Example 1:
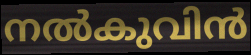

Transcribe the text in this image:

നൽകുവിൻ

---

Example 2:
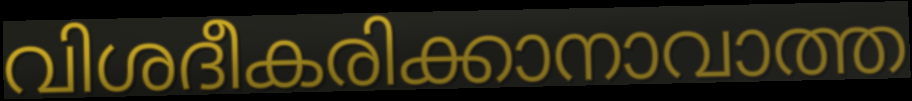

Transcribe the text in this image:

വിശദീകരിക്കാനാവാത്ത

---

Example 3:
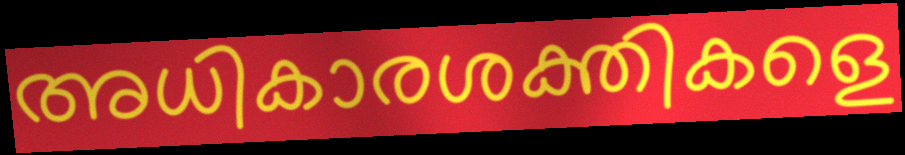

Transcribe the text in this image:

അധികാരശക്തികളെ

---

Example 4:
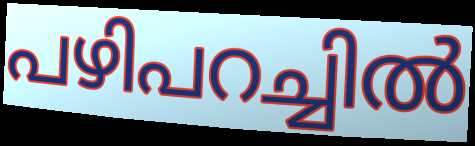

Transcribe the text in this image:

പഴിപറച്ചിൽ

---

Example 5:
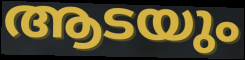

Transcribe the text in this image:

ആടയും